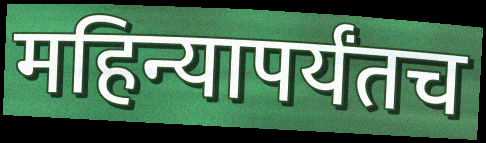
महिन्यापर्यंतच